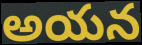
అయన